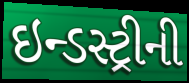
ઇન્ડસ્ટ્રીની